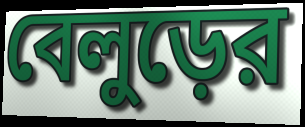
বেলুড়ের